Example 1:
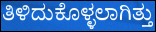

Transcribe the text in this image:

ತಿಳಿದುಕೊಳ್ಳಲಾಗಿತ್ತು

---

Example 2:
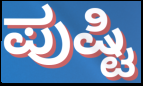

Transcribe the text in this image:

ಪುಷ್ಟಿ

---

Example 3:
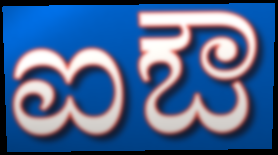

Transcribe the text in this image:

ಐಔ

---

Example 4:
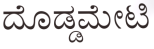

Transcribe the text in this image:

ದೊಡ್ಡಮೇಟಿ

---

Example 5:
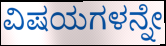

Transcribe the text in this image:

ವಿಷಯಗಳನ್ನೇ